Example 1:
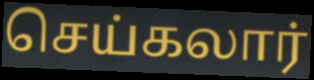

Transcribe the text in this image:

செய்கலார்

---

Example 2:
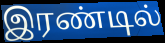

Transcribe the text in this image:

இரண்டில்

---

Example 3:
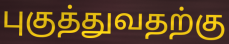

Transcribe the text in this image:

புகுத்துவதற்கு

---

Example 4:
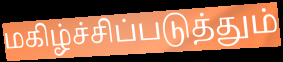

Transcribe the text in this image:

மகிழ்ச்சிப்படுத்தும்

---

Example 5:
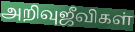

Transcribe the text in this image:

அறிவுஜீவிகள்